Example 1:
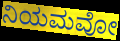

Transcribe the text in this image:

ನಿಯಮವೋ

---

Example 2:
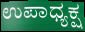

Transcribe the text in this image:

ಉಪಾಧ್ಯಕ್ಷ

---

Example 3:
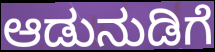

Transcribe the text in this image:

ಆಡುನುಡಿಗೆ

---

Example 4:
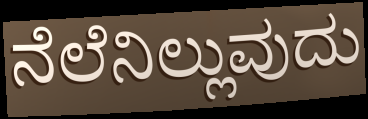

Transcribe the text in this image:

ನೆಲೆನಿಲ್ಲುವುದು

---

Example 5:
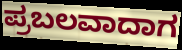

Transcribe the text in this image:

ಪ್ರಬಲವಾದಾಗ